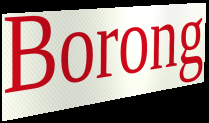
Borong